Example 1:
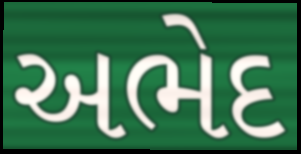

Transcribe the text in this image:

અભેદ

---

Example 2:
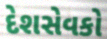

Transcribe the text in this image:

દેશસેવકો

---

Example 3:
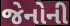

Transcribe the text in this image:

જેનોની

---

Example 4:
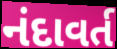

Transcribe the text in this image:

નંદાવર્ત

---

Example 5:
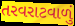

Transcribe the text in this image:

તરવરાટવાળું